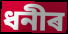
ধনীৰ